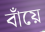
বাঁয়ে